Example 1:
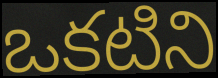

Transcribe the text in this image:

ఒకటిని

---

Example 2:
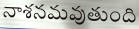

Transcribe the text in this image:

నాశనమవుతుంది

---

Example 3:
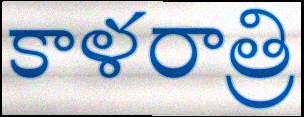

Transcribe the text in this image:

కాళరాత్రి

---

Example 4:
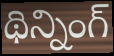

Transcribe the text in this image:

థిన్నింగ్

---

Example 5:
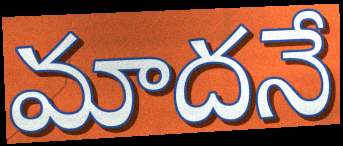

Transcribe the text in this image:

మాదనే